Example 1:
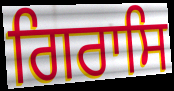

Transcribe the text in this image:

ਗਿਰਾਸਿ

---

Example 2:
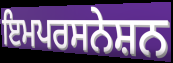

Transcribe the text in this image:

ਇਮਪਰਸਨੇਸ਼ਨ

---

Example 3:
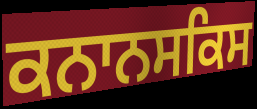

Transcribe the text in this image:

ਕਨਾਨਸਕਿਸ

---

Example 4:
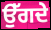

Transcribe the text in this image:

ਉੱਗਦੇ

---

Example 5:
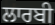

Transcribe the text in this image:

ਲਾਰਬੀ